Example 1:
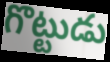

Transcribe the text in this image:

గొట్టుడు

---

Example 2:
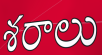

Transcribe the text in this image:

శరాలు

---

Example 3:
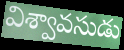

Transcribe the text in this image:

విశ్వావసుడు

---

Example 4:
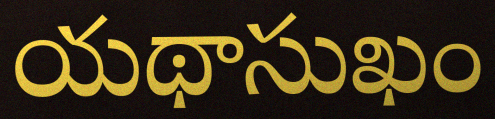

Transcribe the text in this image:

యథాసుఖం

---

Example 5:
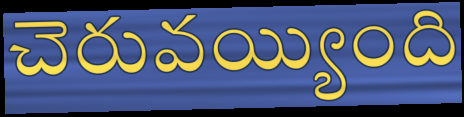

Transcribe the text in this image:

చెరువయ్యింది